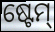
ଷ୍ଟେମ୍